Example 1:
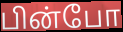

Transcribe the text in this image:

பின்போ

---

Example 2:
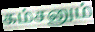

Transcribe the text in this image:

கம்சனும்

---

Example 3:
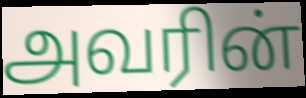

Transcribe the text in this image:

அவரின்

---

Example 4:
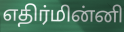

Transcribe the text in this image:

எதிர்மின்னி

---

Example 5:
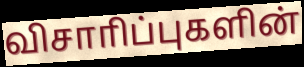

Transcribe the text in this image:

விசாரிப்புகளின்